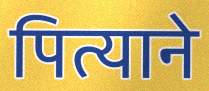
पित्याने